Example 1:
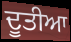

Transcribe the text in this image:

ਦੂਤੀਆ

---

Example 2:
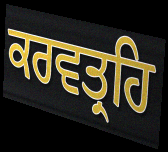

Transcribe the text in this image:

ਕਰਵਤ੍ਰਹਿ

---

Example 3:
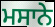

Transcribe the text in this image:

ਮਸਾਨੇ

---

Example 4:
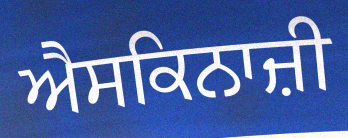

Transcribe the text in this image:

ਐਸਕਿਨਾਜ਼ੀ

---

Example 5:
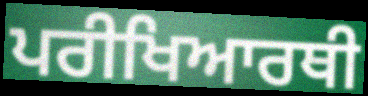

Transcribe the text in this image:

ਪਰੀਖਿਆਰਥੀ